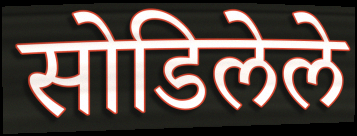
सोडिलेले